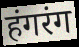
हंगरंग